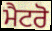
ਮੈਟਰੋ